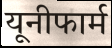
यूनीफार्म